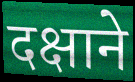
दक्षाने